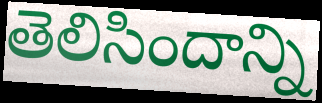
తెలిసిందాన్ని